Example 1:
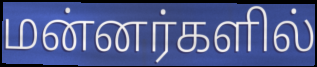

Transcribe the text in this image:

மன்னர்களில்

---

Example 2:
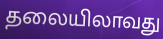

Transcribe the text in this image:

தலையிலாவது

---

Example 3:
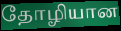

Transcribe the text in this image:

தோழியான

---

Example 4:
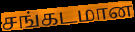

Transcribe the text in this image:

சங்கடமான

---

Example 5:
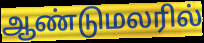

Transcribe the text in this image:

ஆண்டுமலரில்